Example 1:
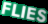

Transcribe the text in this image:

FLIES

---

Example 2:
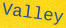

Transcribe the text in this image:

Valley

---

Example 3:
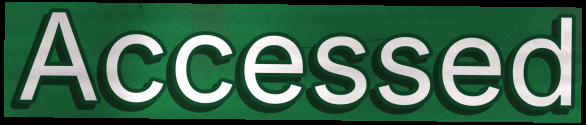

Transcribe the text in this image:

Accessed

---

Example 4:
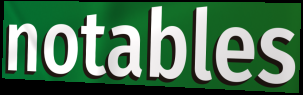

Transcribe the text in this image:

notables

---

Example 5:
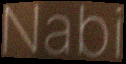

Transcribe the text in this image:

Nabi